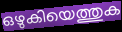
ഒഴുകിയെത്തുക